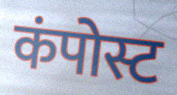
कंपोस्ट